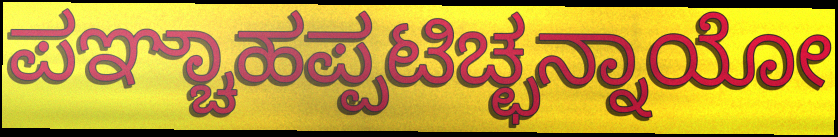
ಪಞ್ಚಾಹಪ್ಪಟಿಚ್ಛನ್ನಾಯೋ